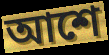
আশে